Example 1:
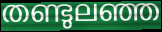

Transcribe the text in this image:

തണ്ടുലഞ്ഞ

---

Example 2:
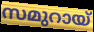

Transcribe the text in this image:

സമുറായ്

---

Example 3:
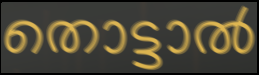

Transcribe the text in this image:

തൊട്ടാൽ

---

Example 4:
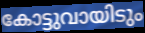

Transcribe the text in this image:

കോട്ടുവായിടും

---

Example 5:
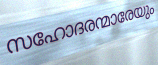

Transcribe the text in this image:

സഹോദരന്മാരേയും